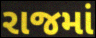
રાજમાં